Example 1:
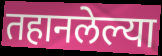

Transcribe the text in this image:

तहानलेल्या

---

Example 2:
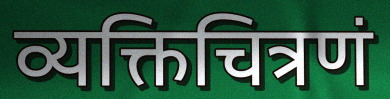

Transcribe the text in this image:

व्यक्तिचित्रणं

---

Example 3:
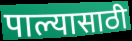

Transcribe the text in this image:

पाल्यासाठी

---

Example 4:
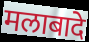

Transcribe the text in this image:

मलाबादे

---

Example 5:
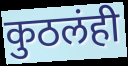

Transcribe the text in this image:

कुठलंही